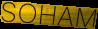
SOHAM